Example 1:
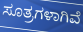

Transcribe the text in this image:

ಸೂತ್ರಗಳಾಗಿವೆ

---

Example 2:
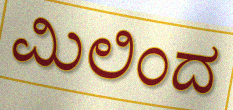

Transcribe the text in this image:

ಮಿಲಿಂದ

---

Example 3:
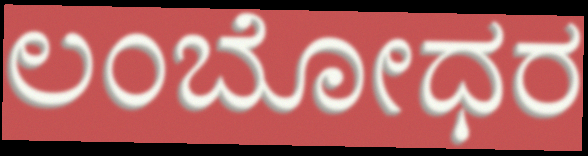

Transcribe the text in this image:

ಲಂಬೋಧರ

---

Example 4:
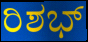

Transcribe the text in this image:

ರಿಶಭ್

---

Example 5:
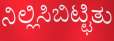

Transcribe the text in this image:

ನಿಲ್ಲಿಸಿಬಿಟ್ಟಿತು